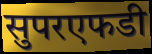
सुपरएफडी